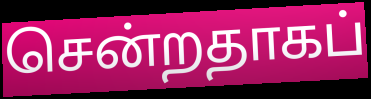
சென்றதாகப்